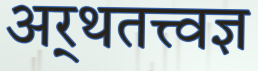
अर्थतत्त्वज्ञ